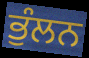
ਭੁੰਲਨ